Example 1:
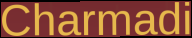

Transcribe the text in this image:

Charmadi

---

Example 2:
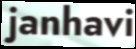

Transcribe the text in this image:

janhavi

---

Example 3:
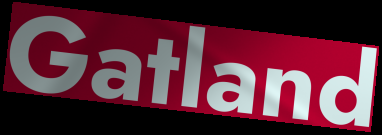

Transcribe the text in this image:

Gatland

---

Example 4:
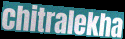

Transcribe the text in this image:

chitralekha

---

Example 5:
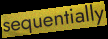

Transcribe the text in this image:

sequentially